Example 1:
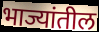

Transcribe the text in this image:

भाज्यांतील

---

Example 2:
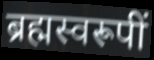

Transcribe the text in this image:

ब्रह्मस्वरूपीं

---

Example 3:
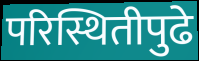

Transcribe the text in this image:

परिस्थितीपुढे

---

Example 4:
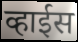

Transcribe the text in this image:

व्हाईस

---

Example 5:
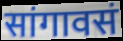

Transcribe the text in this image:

सांगावसं